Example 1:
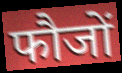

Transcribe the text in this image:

फौजों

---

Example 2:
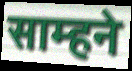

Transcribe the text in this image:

साम्हने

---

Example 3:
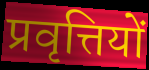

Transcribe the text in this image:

प्रवृत्तियों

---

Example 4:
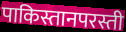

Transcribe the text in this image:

पाकिस्तानपरस्ती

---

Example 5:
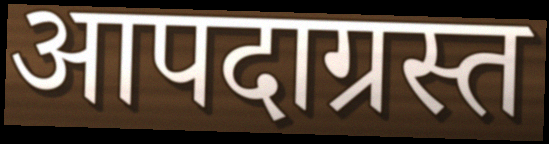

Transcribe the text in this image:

आपदाग्रस्त